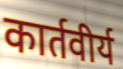
कार्तवीर्य